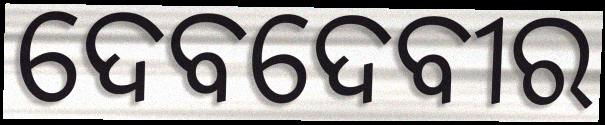
ଦେବଦେବୀର